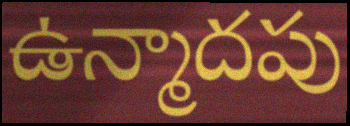
ఉన్మాదపు